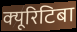
क्यूरिटिबा